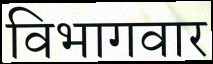
विभागवार